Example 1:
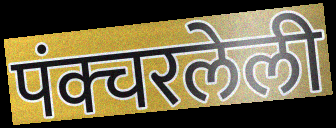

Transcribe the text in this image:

पंक्चरलेली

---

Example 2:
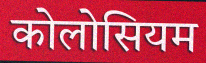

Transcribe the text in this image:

कोलोसियम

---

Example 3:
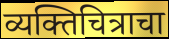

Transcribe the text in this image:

व्यक्तिचित्राचा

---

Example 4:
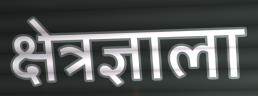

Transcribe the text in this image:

क्षेत्रज्ञाला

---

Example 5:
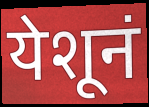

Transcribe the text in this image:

येशूनं